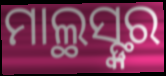
ମାଲ୍ଥସ୍ଙ୍କର